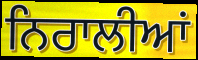
ਨਿਰਾਲੀਆਂ